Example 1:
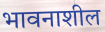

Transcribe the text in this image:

भावनाशील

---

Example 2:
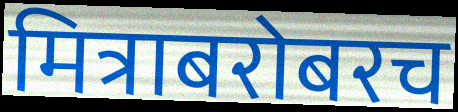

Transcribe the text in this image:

मित्राबरोबरच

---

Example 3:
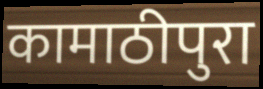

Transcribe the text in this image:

कामाठीपुरा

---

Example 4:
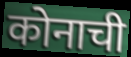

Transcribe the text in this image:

कोनाची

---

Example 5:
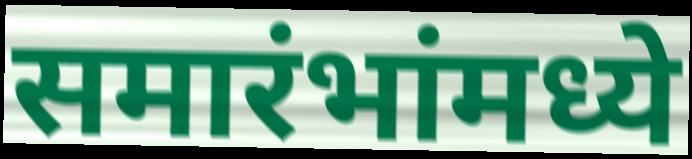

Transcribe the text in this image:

समारंभांमध्ये